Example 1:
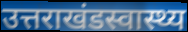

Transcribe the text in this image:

उत्तराखंडस्वास्थ्य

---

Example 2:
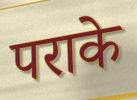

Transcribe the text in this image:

पराके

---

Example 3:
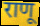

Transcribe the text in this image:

राणू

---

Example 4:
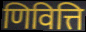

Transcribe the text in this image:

णिवित्ति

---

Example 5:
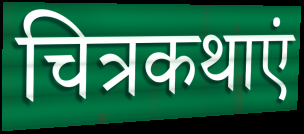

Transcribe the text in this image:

चित्रकथाएं